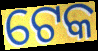
ଟେକ